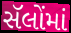
સૅલોંમાં